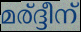
മര്ദ്ദീന്